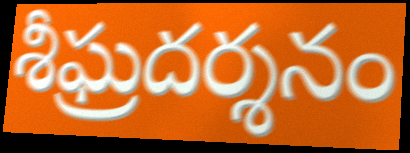
శీఘ్రదర్శనం